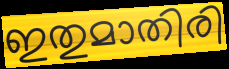
ഇതുമാതിരി